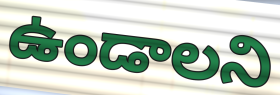
ఉండాలని